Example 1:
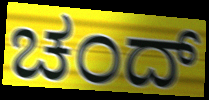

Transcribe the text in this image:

ಚಂದ್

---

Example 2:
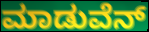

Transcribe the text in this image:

ಮಾಡುವೆನ್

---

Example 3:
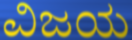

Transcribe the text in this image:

ವಿಜಯ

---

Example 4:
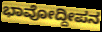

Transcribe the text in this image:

ಭಾವೋದ್ದೀಪನ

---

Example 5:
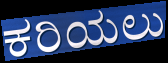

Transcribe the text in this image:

ಕರಿಯಲು